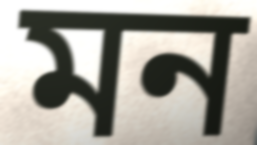
মন